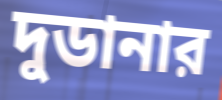
দুডানার